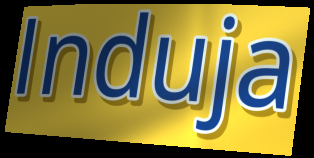
Induja